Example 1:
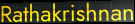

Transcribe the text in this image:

Rathakrishnan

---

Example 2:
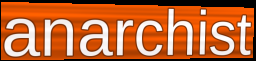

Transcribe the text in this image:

anarchist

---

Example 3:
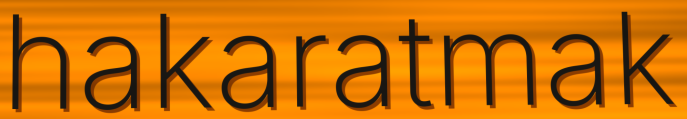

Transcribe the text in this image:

hakaratmak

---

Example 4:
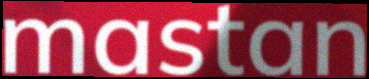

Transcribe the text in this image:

mastan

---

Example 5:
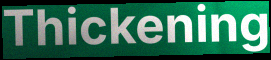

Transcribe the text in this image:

Thickening